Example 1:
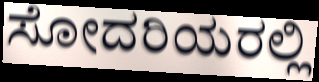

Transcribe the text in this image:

ಸೋದರಿಯರಲ್ಲಿ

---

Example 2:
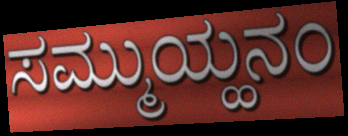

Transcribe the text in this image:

ಸಮ್ಮುಯ್ಹನಂ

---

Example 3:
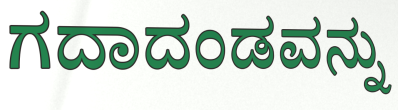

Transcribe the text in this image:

ಗದಾದಂಡವನ್ನು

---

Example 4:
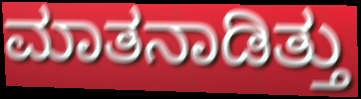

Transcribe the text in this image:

ಮಾತನಾಡಿತ್ತು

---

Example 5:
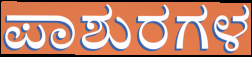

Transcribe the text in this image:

ಪಾಶುರಗಳ